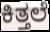
ಕಿತ್ತಲೆ